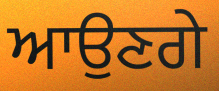
ਆਉਣਗੇ